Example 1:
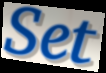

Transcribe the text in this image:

Set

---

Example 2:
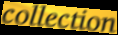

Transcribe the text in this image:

collection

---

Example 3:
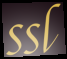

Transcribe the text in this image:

ssl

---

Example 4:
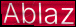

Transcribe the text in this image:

Ablaz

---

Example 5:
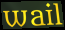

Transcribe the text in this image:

wail